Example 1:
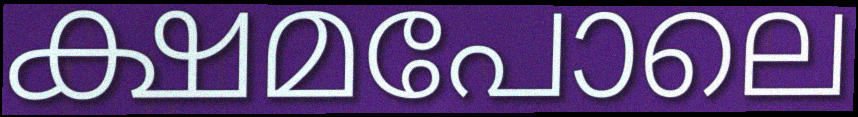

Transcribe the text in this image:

ക്ഷമപോലെ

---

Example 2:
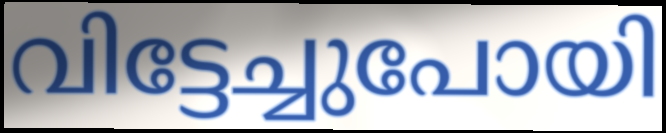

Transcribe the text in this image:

വിട്ടേച്ചുപോയി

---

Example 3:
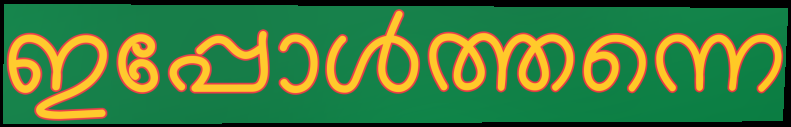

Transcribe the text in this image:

ഇപ്പോൾത്തന്നെ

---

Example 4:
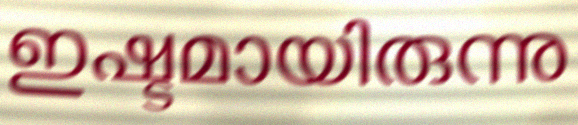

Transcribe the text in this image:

ഇഷ്ടമായിരുന്നു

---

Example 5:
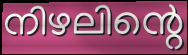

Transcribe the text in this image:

നിഴലിന്റെ